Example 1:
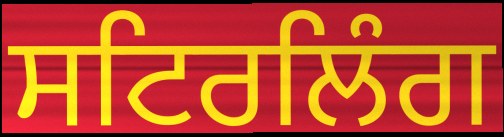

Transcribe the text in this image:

ਸਟਿਰਲਿੰਗ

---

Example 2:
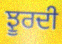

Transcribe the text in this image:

ਝੂਰਦੀ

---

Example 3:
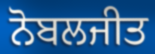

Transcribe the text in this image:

ਨੋਬਲਜੀਤ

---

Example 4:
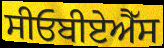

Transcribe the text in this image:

ਸੀਓਬੀਏਐੱਸ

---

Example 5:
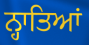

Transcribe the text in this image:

ਨ੍ਹਾਤਿਆਂ